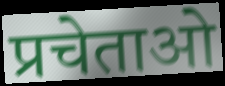
प्रचेताओ